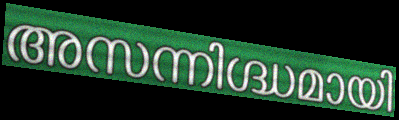
അസന്നിഗ്ദ്ധമായി